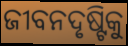
ଜୀବନଦୃଷ୍ଟିକୁ